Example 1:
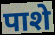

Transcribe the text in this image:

पाशे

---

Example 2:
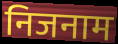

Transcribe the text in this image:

निजनाम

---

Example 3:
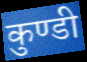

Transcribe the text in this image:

कुण्डी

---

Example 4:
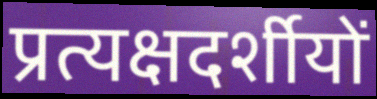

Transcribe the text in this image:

प्रत्यक्षदर्शीयों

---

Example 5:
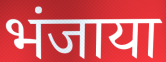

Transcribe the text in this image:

भंजाया